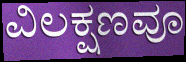
ವಿಲಕ್ಷಣವೂ